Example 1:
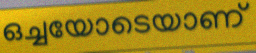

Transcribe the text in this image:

ഒച്ചയോടെയാണ്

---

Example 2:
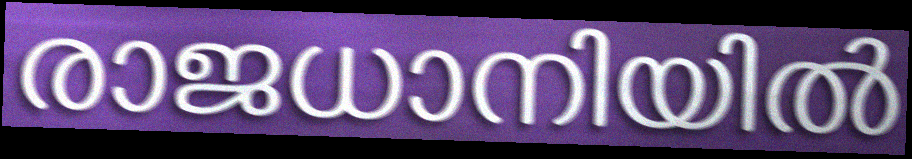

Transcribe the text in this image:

രാജധാനിയിൽ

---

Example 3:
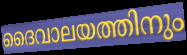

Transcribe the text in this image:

ദൈവാലയത്തിനും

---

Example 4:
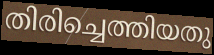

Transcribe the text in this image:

തിരിച്ചെത്തിയതു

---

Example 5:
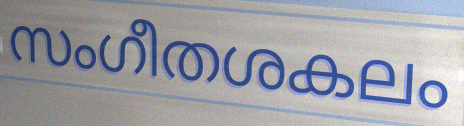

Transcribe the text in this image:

സംഗീതശകലം